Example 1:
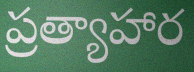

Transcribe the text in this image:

ప్రత్యాహార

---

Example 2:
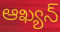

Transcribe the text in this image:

ఆఖ్యన్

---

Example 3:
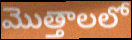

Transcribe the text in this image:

మొత్తాలలో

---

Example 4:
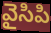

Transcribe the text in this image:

వైసిపి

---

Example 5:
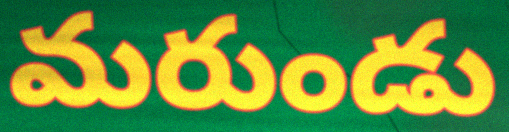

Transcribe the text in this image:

మరుండు